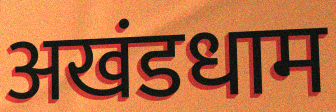
अखंडधाम